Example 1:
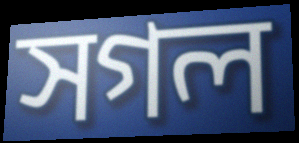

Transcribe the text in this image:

সগল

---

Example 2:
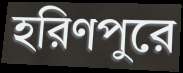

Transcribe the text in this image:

হরিণপুরে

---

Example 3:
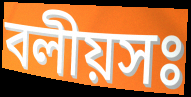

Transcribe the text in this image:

বলীয়সঃ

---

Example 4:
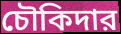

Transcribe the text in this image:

চৌকিদার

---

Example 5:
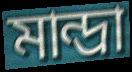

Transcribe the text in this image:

মান্দ্রা